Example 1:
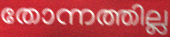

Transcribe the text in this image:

തോന്നത്തില്ല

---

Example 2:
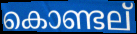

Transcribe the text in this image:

കൊണ്ടല്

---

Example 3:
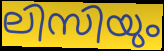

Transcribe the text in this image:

ലിസിയും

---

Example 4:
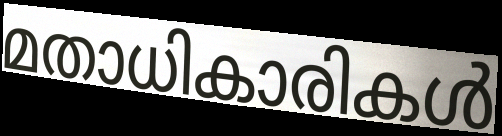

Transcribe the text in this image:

മതാധികാരികൾ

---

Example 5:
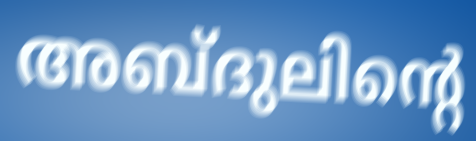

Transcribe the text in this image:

അബ്ദുലിന്റെ